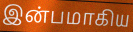
இன்பமாகிய